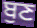
ਬੁਣ